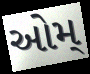
ઓમ્